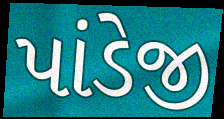
પાંડેજી